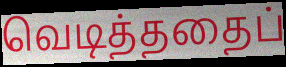
வெடித்ததைப்